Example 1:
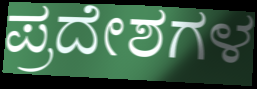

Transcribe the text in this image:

ಪ್ರದೇಶಗಳ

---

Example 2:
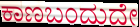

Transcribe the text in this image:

ಕಾಣಬಂದುದೇ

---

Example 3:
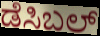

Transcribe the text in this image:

ಡೆಸಿಬಲ್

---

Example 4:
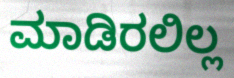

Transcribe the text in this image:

ಮಾಡಿರಲಿಲ್ಲ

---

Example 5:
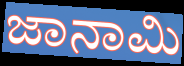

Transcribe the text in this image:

ಜಾನಾಮಿ